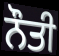
ਨੌਤੀ